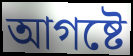
আগষ্টে